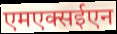
एमएक्सईएन